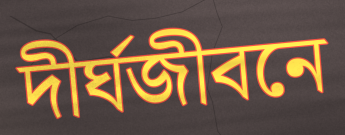
দীর্ঘজীবনে